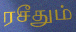
ரசீதும்